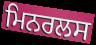
ਮਿਨਰਲਸ